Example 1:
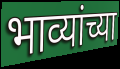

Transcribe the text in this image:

भाव्यांच्या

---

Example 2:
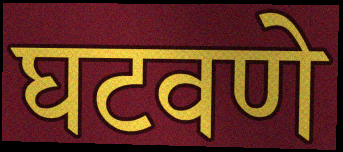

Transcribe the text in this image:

घटवणे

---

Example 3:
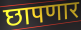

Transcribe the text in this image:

छापणार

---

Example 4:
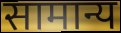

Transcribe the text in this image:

सामान्य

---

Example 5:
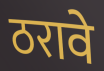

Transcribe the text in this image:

ठरावे